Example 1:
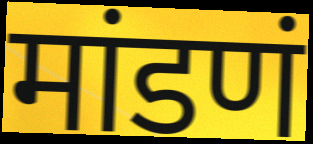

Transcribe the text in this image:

मांडणं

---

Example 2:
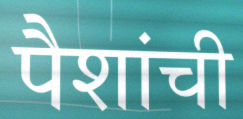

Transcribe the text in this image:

पैशांची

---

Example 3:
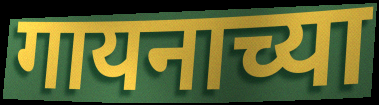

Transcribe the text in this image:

गायनाच्या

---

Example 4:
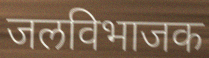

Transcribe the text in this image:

जलविभाजक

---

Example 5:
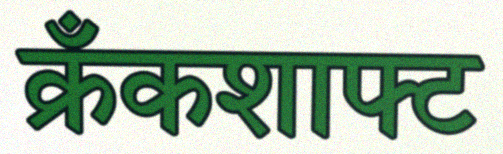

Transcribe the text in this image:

क्रँकशाफ्ट